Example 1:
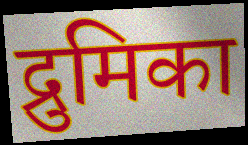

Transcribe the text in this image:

द्रुमिका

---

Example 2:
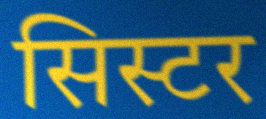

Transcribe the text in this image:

सिस्टर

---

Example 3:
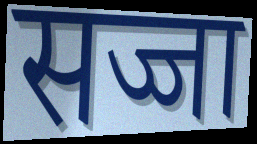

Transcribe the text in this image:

सज्जा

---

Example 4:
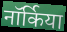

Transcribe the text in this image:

नॉर्किया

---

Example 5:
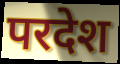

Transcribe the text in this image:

परदेश